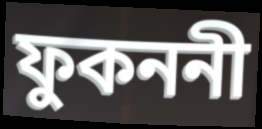
ফুকননী